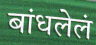
बांधलेलं